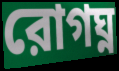
রোগঘ্ন